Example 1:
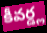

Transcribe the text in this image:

కీవర్డ్ల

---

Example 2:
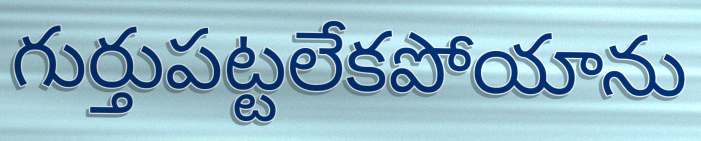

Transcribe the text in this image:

గుర్తుపట్టలేకపోయాను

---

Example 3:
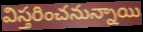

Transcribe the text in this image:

విస్తరించనున్నాయి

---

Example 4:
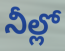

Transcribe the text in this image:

నీల్లో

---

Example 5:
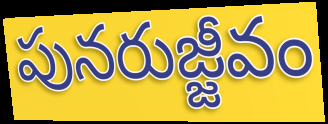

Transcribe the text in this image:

పునరుజ్జీవం